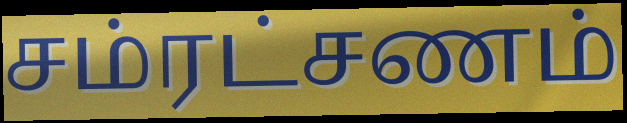
சம்ரட்சணம்